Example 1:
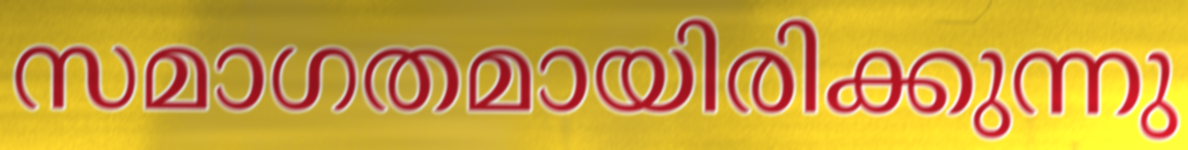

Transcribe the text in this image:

സമാഗതമായിരിക്കുന്നു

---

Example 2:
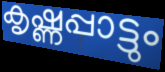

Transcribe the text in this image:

കൃഷ്ണപ്പാട്ടും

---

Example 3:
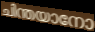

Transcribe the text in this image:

ചിന്തയാനോ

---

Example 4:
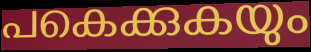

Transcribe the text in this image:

പകെക്കുകയും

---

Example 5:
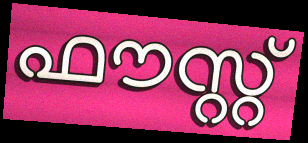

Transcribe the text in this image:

ഫൗസ്റ്റ്